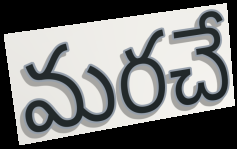
మరచే